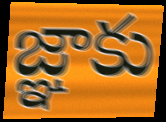
జ్ఞాకు